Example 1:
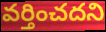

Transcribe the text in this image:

వర్తించదని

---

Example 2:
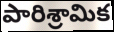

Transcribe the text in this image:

పారిశ్రామిక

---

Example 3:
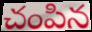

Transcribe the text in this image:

చంపిన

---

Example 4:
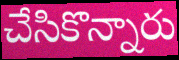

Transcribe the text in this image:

చేసికొన్నారు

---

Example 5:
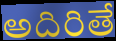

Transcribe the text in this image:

అదిరితే